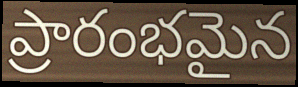
ప్రారంభమైన